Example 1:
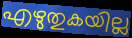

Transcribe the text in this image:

എഴുതുകയില്ല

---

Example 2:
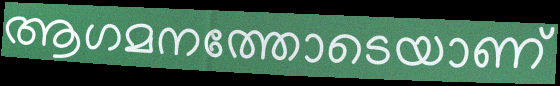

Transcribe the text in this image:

ആഗമനത്തോടെയാണ്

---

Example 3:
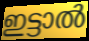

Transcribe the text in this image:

ഇട്ടാൽ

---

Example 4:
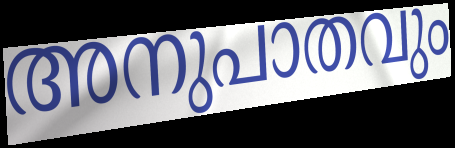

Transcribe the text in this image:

അനുപാതവും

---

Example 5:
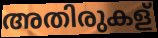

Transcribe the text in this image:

അതിരുകള്